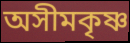
অসীমকৃষ্ণ